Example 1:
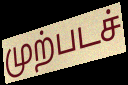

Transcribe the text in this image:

முற்படச்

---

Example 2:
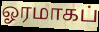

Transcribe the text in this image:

ஓரமாகப்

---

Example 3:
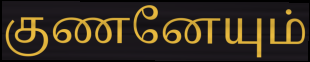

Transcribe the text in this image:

குணனேயும்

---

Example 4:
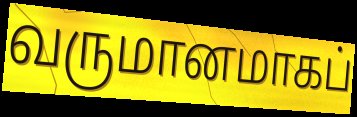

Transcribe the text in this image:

வருமானமாகப்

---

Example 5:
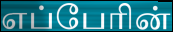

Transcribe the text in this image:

எப்பேரின்